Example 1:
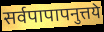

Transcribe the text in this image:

सर्वपापापनुत्तये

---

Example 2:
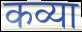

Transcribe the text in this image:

कव्या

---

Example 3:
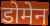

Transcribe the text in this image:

डोमेन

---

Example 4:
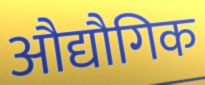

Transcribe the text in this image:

औद्यौगिक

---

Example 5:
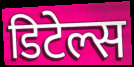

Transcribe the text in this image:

डिटेल्स